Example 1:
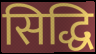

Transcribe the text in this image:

सिद्धि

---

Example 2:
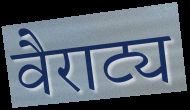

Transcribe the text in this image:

वैराट्य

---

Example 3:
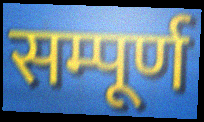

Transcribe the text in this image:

सम्‍पूर्ण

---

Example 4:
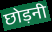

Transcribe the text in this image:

छोड़नी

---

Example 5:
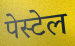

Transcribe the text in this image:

पेस्टेल